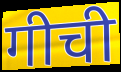
गीची